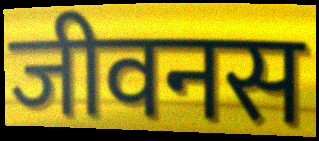
जीवनस